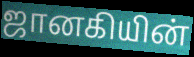
ஜானகியின்